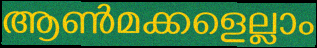
ആൺമക്കളെല്ലാം